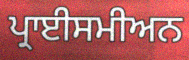
ਪ੍ਰਾਈਸਮੀਅਨ